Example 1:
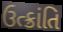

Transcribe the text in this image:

ઉત્ક્રાંતિ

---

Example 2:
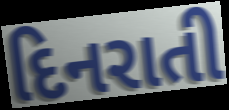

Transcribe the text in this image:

દિનરાતી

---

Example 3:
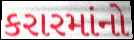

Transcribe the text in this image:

કરારમાંનો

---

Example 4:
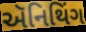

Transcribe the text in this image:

ઍનિથિંગ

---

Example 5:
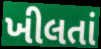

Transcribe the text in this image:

ખીલતાં